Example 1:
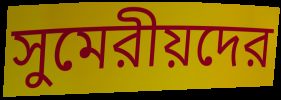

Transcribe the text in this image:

সুমেরীয়দের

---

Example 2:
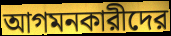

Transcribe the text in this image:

আগমনকারীদের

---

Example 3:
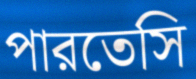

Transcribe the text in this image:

পারতেসি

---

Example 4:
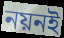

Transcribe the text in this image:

নয়নই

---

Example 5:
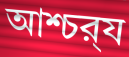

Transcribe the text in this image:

আশ্চর্‍য